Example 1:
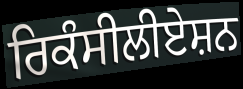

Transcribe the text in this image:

ਰਿਕੰਸੀਲੀਏਸ਼ਨ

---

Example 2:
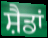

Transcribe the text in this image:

ਸ਼ੈਡਾਂ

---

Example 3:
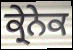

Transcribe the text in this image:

ਕ੍ਰੇਨੇਕ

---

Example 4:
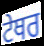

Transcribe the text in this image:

ਟੇਥਰ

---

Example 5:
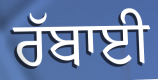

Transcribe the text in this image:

ਰੱਬਾਈ